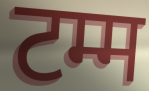
टम्म